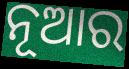
ନୂଆର